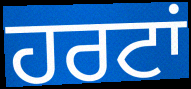
ਹਰਟਾਂ